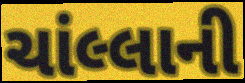
ચાંલ્લાની